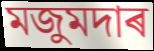
মজুমদাৰ